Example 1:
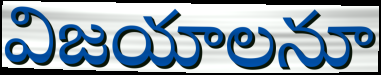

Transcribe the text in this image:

విజయాలనూ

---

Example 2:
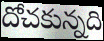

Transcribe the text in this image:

దోచకున్నది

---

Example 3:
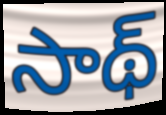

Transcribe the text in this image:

సాథ్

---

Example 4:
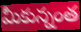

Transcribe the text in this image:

మీకున్నంత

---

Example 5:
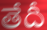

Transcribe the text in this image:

తేదీ